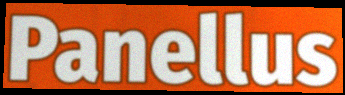
Panellus